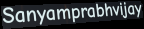
Sanyamprabhvijay